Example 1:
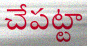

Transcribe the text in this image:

చేపట్టా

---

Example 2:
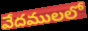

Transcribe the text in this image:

వేదములలో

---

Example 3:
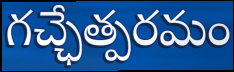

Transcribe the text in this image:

గచ్ఛేత్పరమం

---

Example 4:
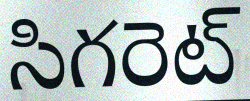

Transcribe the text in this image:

సిగరెట్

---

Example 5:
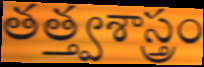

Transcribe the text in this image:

తత్త్వశాస్త్రం